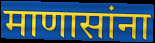
माणासांना